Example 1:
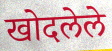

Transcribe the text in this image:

खोदलेले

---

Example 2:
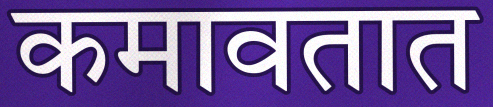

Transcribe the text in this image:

कमावतात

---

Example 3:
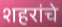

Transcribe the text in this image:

शहरांचे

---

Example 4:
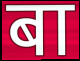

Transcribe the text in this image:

बा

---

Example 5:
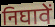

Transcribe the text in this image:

निघावें